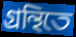
গ্রন্থিতে